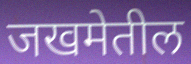
जखमेतील